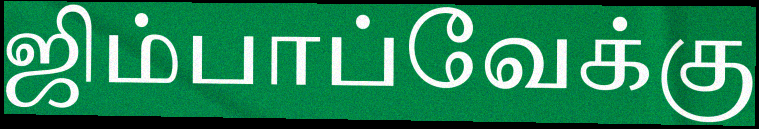
ஜிம்பாப்வேக்கு